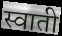
स्वाती